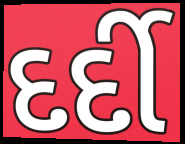
દર્દી